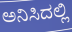
ಅನಿಸಿದಲ್ಲಿ